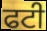
ਫਟੀ